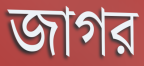
জাগর